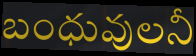
బంధువులనీ